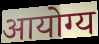
आयोग्य